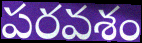
పరవశం